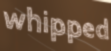
whipped